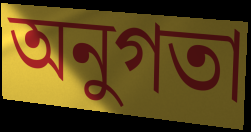
অনুগতা